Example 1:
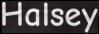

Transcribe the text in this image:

Halsey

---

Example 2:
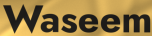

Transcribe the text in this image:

Waseem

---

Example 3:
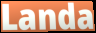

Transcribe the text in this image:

Landa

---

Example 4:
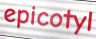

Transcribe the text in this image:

epicotyl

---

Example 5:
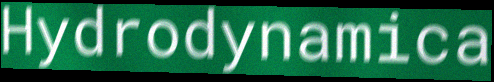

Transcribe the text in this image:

Hydrodynamica